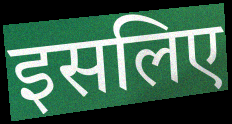
इसलिए